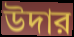
উদার